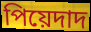
পিয়েদাদ